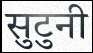
सुटुनी